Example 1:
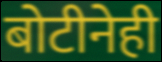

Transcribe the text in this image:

बोटीनेही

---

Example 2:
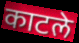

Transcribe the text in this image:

काटले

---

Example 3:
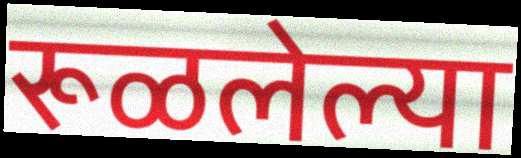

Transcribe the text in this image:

रूळलेल्या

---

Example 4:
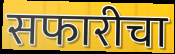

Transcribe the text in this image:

सफारीचा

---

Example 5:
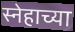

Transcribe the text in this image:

स्नेहाच्या